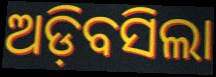
ଅଡ଼ିବସିଲା